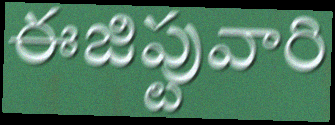
ఈజిప్టువారి